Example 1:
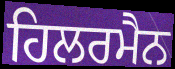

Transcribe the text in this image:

ਹਿਲਰਮੈਨ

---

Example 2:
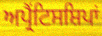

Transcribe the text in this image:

ਅਪ੍ਰੈਂਟਿਸਸ਼ਿਪਾਂ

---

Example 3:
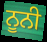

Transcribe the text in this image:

ਨੂਨੀ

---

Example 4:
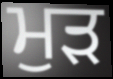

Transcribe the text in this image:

ਮੁੜ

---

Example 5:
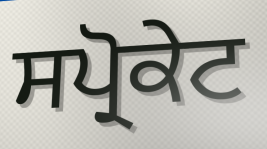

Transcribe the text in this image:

ਸਪ੍ਰੋਕੇਟ